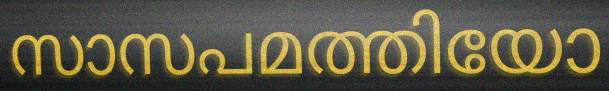
സാസപമത്തിയോ